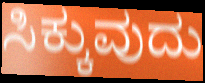
ಸಿಕ್ಕುವುದು